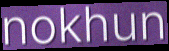
nokhun